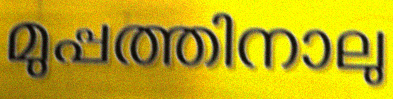
മുപ്പത്തിനാലു